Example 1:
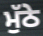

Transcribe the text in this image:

ਮੁੱਠੇ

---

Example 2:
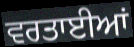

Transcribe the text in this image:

ਵਰਤਾਈਆਂ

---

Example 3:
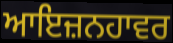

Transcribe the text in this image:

ਆਇਜ਼ਨਹਾਵਰ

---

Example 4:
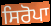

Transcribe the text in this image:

ਸਿਰੋਪਾ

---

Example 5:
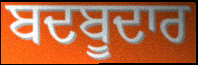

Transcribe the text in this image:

ਬਦਬੂਦਾਰ